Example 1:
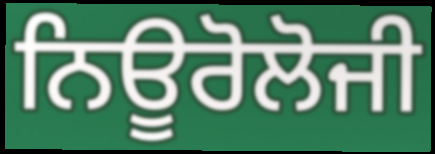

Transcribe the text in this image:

ਨਿਊਰੋਲੋਜੀ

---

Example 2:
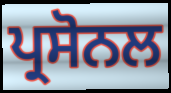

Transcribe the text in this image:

ਪ੍ਰਸੋਨਲ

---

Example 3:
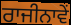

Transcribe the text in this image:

ਰਾਜੀਨਾਵੇਂ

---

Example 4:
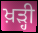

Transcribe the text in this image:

ਖ਼ੜ੍ਹੀ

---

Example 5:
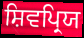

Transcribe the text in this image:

ਸ਼ਿਵਪ੍ਰਿਯ